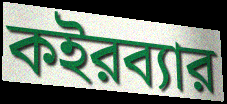
কইরব্যার